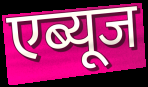
एब्यूज